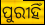
ପୁରୀହିଁ